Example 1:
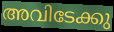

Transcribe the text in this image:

അവിടേക്കു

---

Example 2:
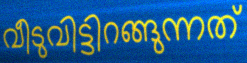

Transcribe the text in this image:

വീടുവിട്ടിറങ്ങുന്നത്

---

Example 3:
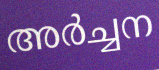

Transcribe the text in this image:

അർച്ചന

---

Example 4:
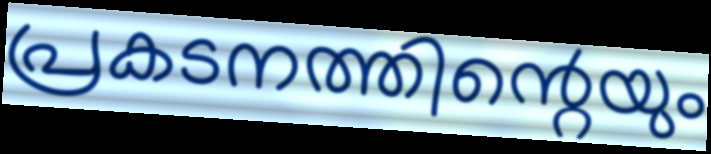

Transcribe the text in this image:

പ്രകടനത്തിന്റെയും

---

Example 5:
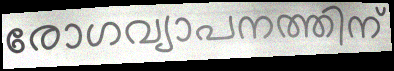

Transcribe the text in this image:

രോഗവ്യാപനത്തിന്